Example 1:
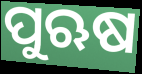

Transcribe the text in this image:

ପୁଋଷ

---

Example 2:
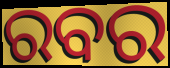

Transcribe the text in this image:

ରବର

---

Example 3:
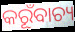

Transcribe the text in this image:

କରୂଁବାଚ୍ୟ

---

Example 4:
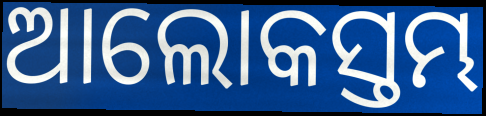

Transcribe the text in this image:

ଆଲୋକସ୍ତମ୍ଭ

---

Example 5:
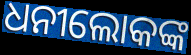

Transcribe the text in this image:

ଧନୀଲୋକଙ୍କ